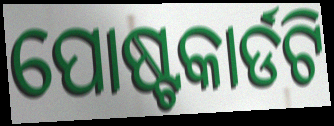
ପୋଷ୍ଟକାର୍ଡଟି